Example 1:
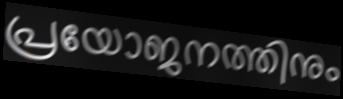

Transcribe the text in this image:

പ്രയോജനത്തിനും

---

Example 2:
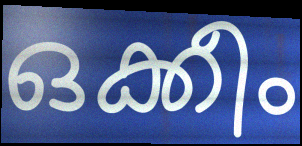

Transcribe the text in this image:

ഒക്കീം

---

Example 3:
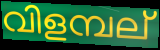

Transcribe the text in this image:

വിളമ്പല്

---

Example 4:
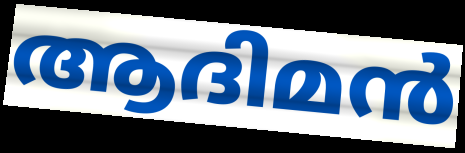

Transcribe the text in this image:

ആദിമൻ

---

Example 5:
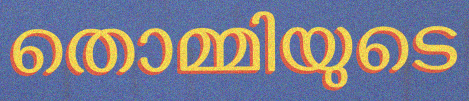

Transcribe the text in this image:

തൊമ്മിയുടെ